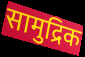
सामुद्रिक